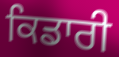
ਕਿਡਾਰੀ